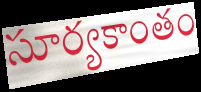
సూర్యకాంతం